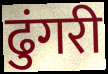
ढुंगरी